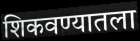
शिकवण्यातला